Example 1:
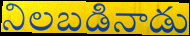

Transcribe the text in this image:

నిలబడినాడు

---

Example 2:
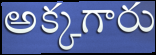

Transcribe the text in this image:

అక్కగారు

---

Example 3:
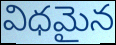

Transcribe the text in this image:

విధమైన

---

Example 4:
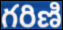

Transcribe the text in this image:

గరిణి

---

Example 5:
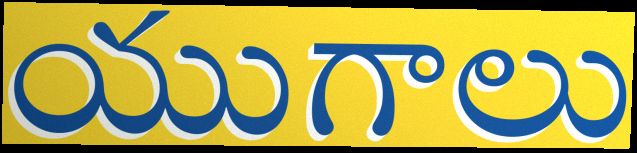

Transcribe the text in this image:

యుగాలు